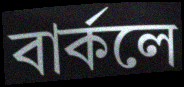
বার্কলে